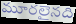
మూరలైనది